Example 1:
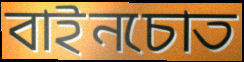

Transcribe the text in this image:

বাইনচোত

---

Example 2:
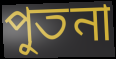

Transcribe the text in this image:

পুতনা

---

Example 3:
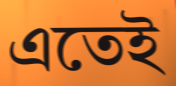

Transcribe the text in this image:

এতেই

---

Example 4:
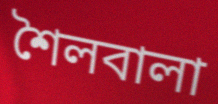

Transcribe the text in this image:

শৈলবালা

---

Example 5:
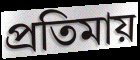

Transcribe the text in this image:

প্রতিমায়